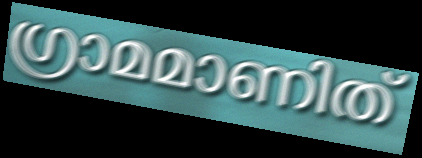
ഗ്രാമമാണിത്